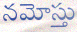
నమోస్తు